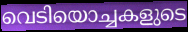
വെടിയൊച്ചകളുടെ